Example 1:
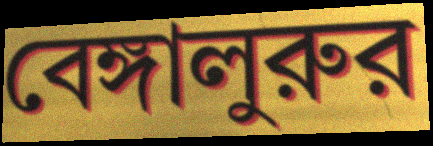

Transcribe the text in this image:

বেঙ্গালুরুর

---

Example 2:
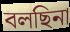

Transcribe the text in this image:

বলছিনা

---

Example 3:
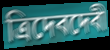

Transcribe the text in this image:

ত্রিদেবদেবী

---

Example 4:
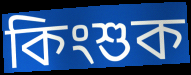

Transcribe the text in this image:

কিংশুক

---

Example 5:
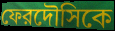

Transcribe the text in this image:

ফেরদৌসিকে